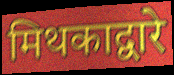
मिथकाद्वारे